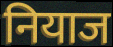
नियाज